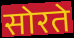
सोरते